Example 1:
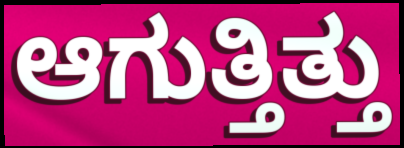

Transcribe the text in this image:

ಆಗುತ್ತಿತ್ತು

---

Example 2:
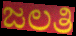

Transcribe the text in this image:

ಜಲತಿ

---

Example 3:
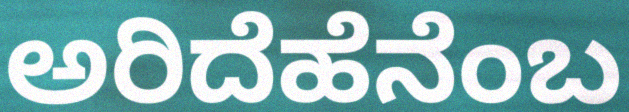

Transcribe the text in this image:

ಅರಿದೆಹೆನೆಂಬ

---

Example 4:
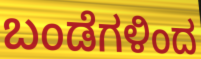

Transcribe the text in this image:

ಬಂಡೆಗಳಿಂದ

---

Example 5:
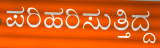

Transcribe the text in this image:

ಪರಿಹರಿಸುತ್ತಿದ್ದ